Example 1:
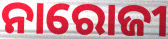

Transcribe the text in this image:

ନାରୋଜୀ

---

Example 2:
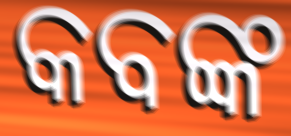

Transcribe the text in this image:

କବଙ୍କ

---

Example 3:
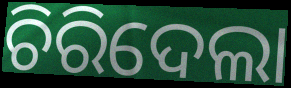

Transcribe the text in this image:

ଚିରିଦେଲା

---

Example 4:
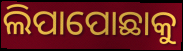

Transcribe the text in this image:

ଲିପାପୋଛାକୁ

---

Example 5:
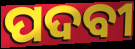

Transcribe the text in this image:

ପଦବୀ